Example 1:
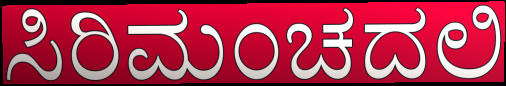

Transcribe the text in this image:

ಸಿರಿಮಂಚದಲಿ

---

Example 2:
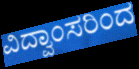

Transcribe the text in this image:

ವಿದ್ವಾಂಸರಿಂದ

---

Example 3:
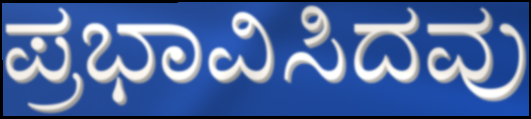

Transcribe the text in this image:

ಪ್ರಭಾವಿಸಿದವು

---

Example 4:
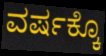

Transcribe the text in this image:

ವರ್ಷಕ್ಕೊ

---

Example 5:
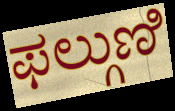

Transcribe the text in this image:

ಫಲ್ಗುಣಿ